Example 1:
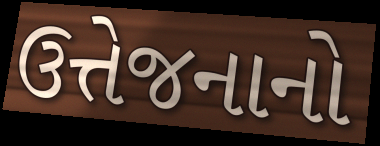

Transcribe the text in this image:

ઉત્તેજનાનો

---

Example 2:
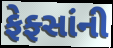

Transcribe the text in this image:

ફેફ્સાંની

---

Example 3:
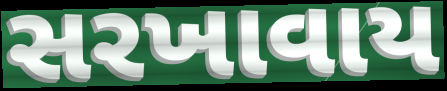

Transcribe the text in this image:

સરખાવાય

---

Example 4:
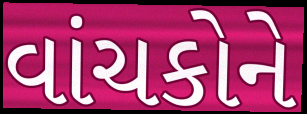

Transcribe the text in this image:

વાંચકોને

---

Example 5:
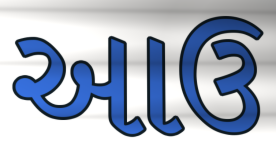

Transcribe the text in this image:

આઉ